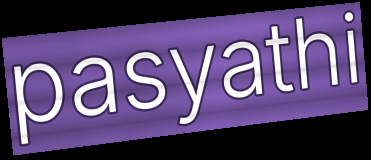
pasyathi